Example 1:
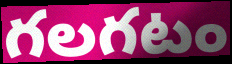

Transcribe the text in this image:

గలగటం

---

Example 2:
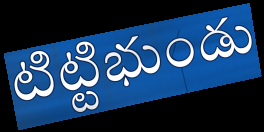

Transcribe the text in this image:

టిట్టిభుండు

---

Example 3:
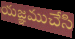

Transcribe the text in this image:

యజ్ఞముచేసి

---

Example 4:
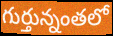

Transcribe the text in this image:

గుర్తున్నంతలో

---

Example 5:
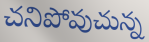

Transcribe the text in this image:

చనిపోవుచున్న